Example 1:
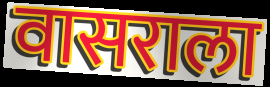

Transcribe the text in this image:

वासराला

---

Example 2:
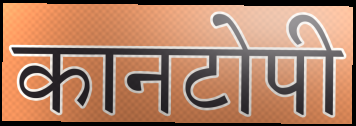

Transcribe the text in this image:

कानटोपी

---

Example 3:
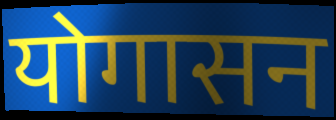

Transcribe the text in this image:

योगासन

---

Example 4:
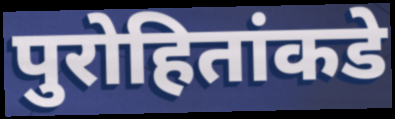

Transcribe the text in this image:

पुरोहितांकडे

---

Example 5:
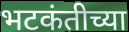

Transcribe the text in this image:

भटकंतीच्या